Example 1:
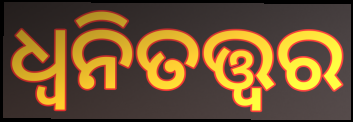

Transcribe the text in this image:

ଧ୍ଵନିତତ୍ତ୍ଵର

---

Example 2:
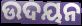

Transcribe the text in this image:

ଉଦୟନ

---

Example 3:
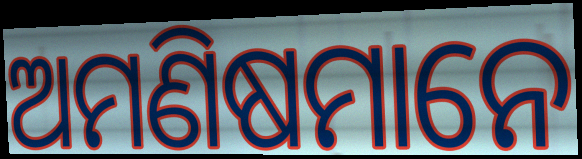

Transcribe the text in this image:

ଅମଣିଷମାନେ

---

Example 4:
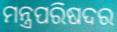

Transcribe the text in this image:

ମନ୍ତ୍ରପରିଷଦର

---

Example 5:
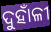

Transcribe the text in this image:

ଦୁହାଁଳୀ